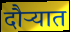
दौऱ्यात